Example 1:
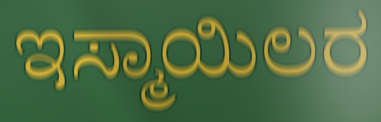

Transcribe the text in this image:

ಇಸ್ಮಾಯಿಲರ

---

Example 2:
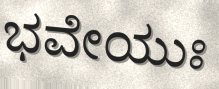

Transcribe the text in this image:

ಭವೇಯುಃ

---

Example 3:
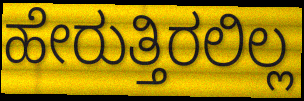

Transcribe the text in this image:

ಹೇರುತ್ತಿರಲಿಲ್ಲ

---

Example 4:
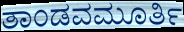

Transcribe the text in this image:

ತಾಂಡವಮೂರ್ತಿ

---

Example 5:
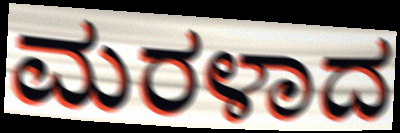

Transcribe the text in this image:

ಮರಳಾದ